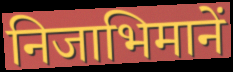
निजाभिमानें